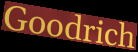
Goodrich